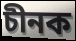
চীনক